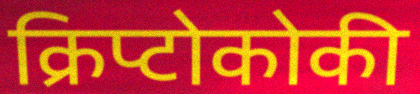
क्रिप्टोकोकी